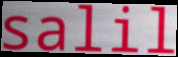
salil